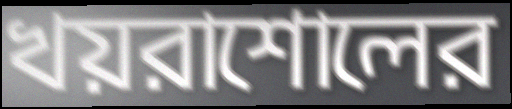
খয়রাশোলের